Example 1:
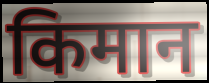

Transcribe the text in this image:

किमान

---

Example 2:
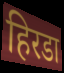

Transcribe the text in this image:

हिरडा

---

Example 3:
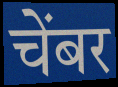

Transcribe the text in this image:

चेंबर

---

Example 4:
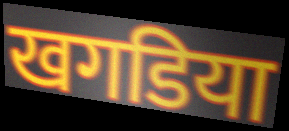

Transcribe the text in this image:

खगडिया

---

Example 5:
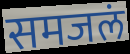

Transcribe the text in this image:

समजलं